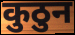
कुठुन